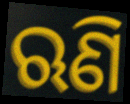
ଋଣି